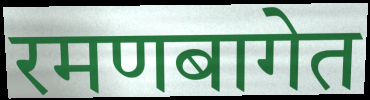
रमणबागेत